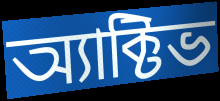
অ্যাক্টিভ